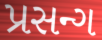
પ્રસન્ગ